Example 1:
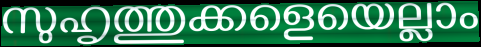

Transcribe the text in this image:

സുഹൃത്തുക്കളെയെല്ലാം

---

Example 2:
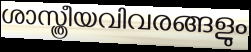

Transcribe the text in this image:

ശാസ്ത്രീയവിവരങ്ങളും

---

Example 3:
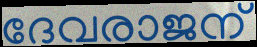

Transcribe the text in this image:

ദേവരാജന്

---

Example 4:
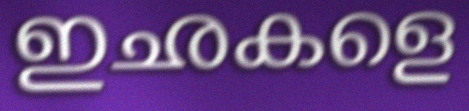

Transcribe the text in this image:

ഇഛകളെ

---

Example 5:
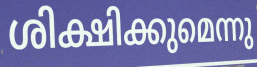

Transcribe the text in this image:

ശിക്ഷിക്കുമെന്നു